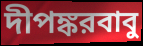
দীপঙ্করবাবু